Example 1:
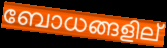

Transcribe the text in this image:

ബോധങ്ങളില്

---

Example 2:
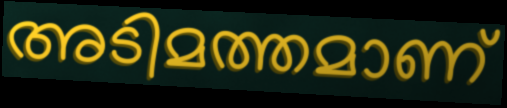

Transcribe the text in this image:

അടിമത്തമാണ്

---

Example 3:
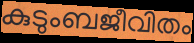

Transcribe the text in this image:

കുടുംബജീവിതം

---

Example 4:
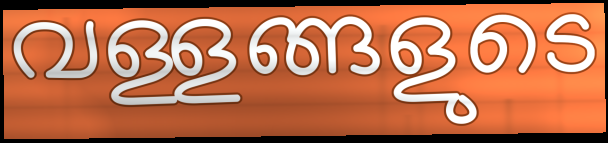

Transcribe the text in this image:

വള്ളങ്ങളുടെ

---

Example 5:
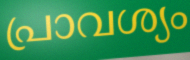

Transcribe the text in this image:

പ്രാവശ്യം